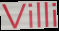
Villi